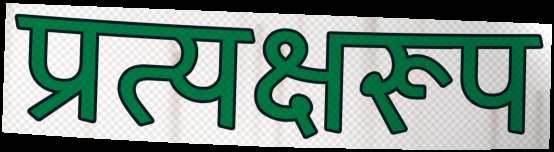
प्रत्यक्षरूप